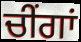
ਚੀਂਗਾਂ